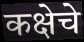
कक्षेचे